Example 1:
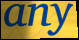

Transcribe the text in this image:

any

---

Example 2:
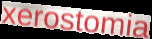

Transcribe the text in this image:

xerostomia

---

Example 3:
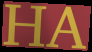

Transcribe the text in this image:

HA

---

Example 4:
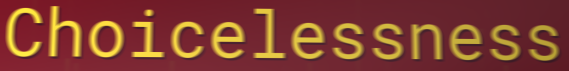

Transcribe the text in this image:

Choicelessness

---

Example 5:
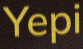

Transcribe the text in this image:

Yepi